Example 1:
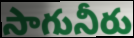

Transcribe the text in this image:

సాగునీరు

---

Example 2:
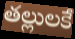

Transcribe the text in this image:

తల్లులకే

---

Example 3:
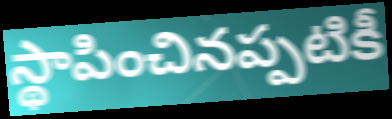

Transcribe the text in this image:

స్థాపించినప్పటికీ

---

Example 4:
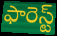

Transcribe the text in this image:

ఫారెస్ట్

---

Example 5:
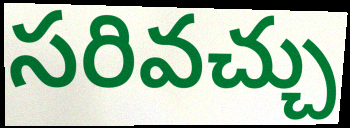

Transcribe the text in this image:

సరివచ్చు